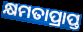
କ୍ଷମତାପ୍ରାପ୍ତ